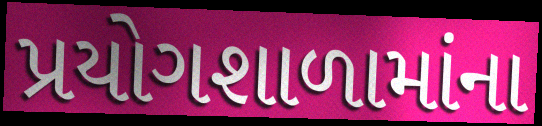
પ્રયોગશાળામાંના